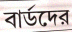
বার্ডদের